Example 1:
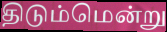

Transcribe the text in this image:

திடும்மென்று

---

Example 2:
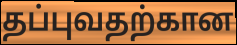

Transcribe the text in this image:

தப்புவதற்கான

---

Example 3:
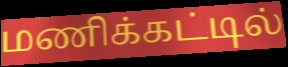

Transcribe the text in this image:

மணிக்கட்டில்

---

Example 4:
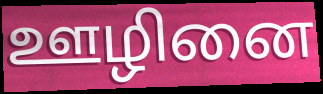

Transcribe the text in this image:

ஊழினை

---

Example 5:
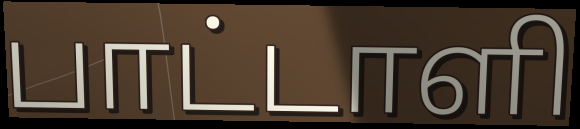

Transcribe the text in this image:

பாட்டாளி